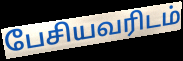
பேசியவரிடம்